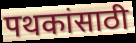
पथकांसाठी